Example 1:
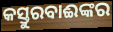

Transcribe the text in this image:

କସ୍ତୁରବାଈଙ୍କର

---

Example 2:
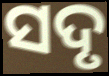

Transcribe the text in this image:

ସଦୃ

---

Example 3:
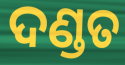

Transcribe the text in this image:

ଦଣ୍ଡତ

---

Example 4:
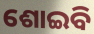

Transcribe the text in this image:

ଶୋଇବି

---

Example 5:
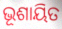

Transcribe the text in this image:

ଭୂଶାୟିତ